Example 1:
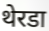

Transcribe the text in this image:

थेरडा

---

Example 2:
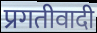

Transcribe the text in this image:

प्रगतीवादी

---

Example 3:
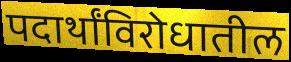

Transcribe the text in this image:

पदार्थांविरोधातील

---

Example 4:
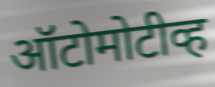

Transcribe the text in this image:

ऑटोमोटीव्ह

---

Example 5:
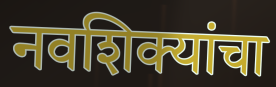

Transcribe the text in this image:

नवशिक्यांचा